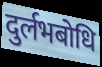
दुर्लभबोधि